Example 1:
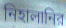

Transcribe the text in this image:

নিহালানির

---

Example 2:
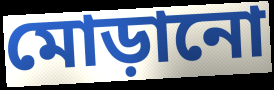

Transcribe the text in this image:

মোড়ানো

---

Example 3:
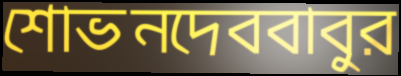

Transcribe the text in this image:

শোভনদেববাবুর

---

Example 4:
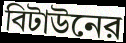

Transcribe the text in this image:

বিটাউনের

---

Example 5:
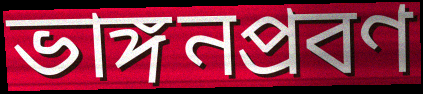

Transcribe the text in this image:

ভাঙ্গনপ্রবণ